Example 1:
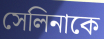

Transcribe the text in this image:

সেলিনাকে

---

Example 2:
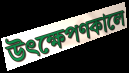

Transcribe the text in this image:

উৎক্ষেপণকালে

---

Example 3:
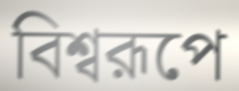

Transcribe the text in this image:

বিশ্বরূপে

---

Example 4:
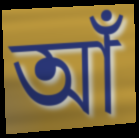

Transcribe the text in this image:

আঁ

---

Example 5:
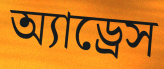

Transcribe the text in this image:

অ্যাড্রেস